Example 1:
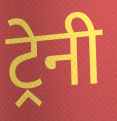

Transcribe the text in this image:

ट्रेनी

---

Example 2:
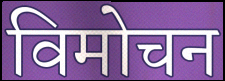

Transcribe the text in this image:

विमोचन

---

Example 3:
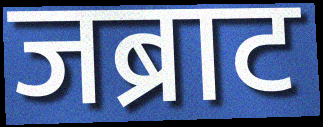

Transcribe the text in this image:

जब्राट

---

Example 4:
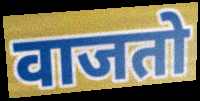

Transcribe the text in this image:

वाजतो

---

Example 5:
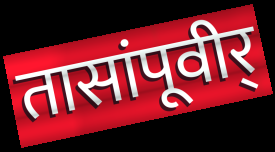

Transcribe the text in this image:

तासांपूवीर्